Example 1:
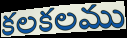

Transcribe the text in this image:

కలకలము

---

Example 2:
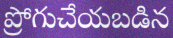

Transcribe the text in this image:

ప్రోగుచేయబడిన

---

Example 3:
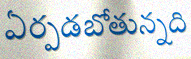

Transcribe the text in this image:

ఏర్పడబోతున్నది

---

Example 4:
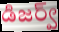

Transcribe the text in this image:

డిజర్వ్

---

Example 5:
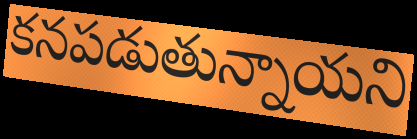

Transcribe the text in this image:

కనపడుతున్నాయని